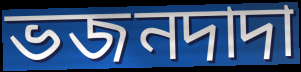
ভজনদাদা